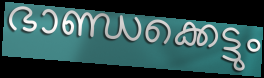
ഭാണ്ഡക്കെട്ടും